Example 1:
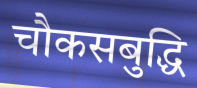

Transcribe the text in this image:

चौकसबुद्धि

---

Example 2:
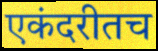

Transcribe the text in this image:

एकंदरीतच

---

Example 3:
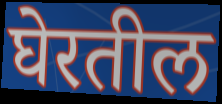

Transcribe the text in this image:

घेरतील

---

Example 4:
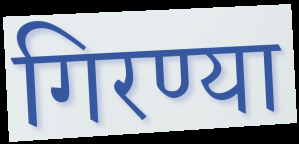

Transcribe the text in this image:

गिरण्या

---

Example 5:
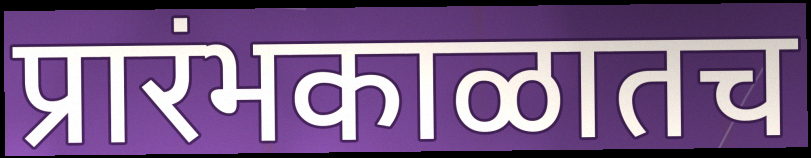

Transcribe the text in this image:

प्रारंभकाळातच